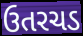
ઉતરચડ